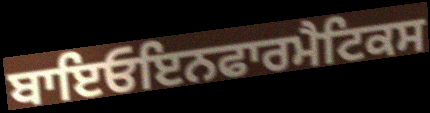
ਬਾਇਓਇਨਫਾਰਮੈਟਿਕਸ